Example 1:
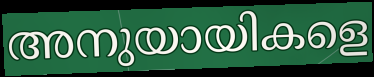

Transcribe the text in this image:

അനുയായികളെ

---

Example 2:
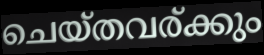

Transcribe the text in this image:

ചെയ്തവര്ക്കും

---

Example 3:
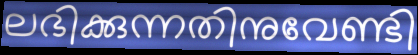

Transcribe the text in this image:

ലഭിക്കുന്നതിനുവേണ്ടി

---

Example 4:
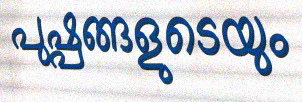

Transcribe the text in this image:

പുഷ്പങ്ങളുടെയും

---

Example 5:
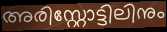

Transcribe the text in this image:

അരിസ്റ്റോട്ടിലിനും